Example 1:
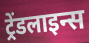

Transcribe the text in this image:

ट्रेंडलाइन्स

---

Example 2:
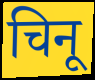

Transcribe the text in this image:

चिनू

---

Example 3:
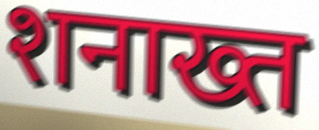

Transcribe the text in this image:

शनाख्त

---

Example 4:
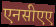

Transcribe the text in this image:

एनसीएए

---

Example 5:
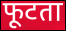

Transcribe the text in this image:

फूटता